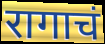
रागाचं